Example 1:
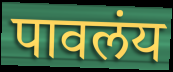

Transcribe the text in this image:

पावलंय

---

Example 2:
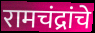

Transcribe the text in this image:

रामचंद्रांचे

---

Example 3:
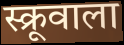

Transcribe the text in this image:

स्क्रूवाला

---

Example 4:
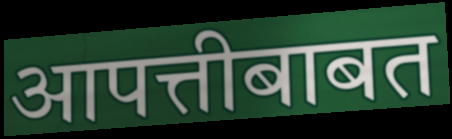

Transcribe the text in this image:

आपत्तीबाबत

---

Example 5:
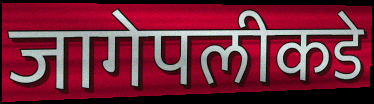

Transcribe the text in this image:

जागेपलीकडे